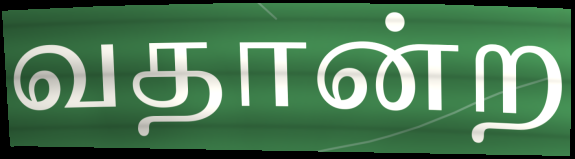
வதான்ற